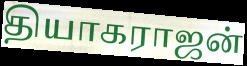
தியாகராஜன்